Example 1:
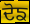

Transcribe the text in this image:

ਦੋਙ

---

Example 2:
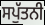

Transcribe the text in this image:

ਸਪੁੱਤਨੀ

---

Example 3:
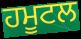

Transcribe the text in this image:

ਹਮੂਟਲ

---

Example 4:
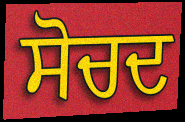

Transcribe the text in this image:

ਸੋਚਦ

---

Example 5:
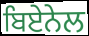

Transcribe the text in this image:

ਬਿਏਨੇਲ